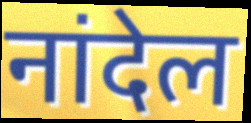
नांदेल